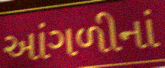
આંગળીનાં